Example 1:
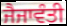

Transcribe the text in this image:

ਜੈਜਾਵੰਤੀ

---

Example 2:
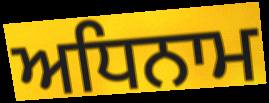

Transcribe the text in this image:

ਅਧਿਨਾਮ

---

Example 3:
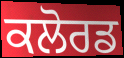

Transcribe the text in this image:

ਕਲੋਰਡ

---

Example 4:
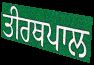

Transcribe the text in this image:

ਤੀਰਥਪਾਲ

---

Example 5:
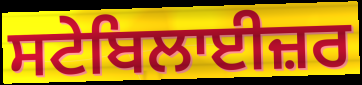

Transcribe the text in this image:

ਸਟੇਬਿਲਾਈਜ਼ਰ